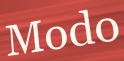
Modo